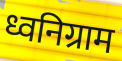
ध्वनिग्राम